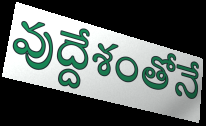
వుద్దేశంతోనే